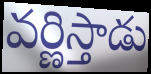
వర్ణిస్తాడు